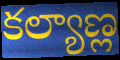
కల్యాణ్ల